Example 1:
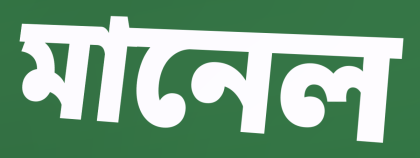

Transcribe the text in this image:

মানেল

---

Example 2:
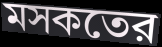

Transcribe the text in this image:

মসকতের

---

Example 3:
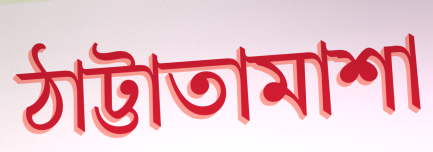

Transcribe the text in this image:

ঠাট্টাতামাশা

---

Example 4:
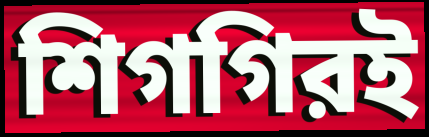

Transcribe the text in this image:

শিগগিরই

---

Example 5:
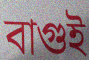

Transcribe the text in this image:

বাগুই